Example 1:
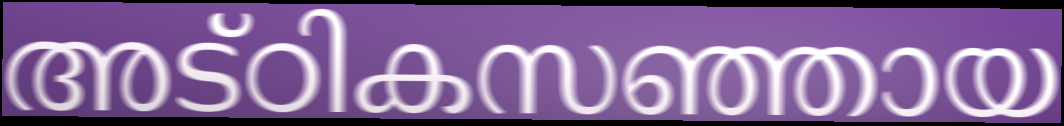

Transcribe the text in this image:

അട്ഠികസഞ്ഞായ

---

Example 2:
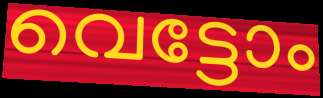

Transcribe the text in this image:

വെട്ടോം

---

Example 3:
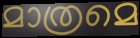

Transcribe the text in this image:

മാത്രമെ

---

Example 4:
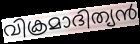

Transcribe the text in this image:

വിക്രമാദിത്യൻ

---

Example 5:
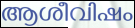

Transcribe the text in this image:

ആശീവിഷം